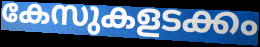
കേസുകളടക്കം